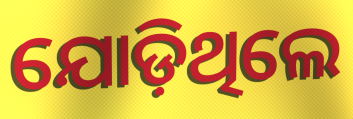
ଯୋଡ଼ିଥିଲେ